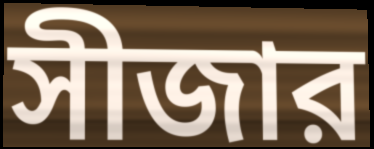
সীজার